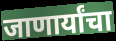
जाणार्यांचा